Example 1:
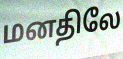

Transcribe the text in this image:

மனதிலே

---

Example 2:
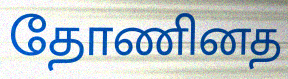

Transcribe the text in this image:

தோணினத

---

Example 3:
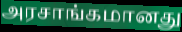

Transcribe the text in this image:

அரசாங்கமானது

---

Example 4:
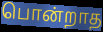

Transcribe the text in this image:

பொன்றாத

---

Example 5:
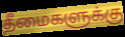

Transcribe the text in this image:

தீமைகளுக்கு